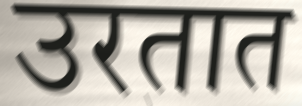
उरतात